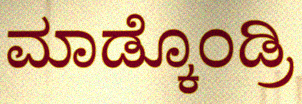
ಮಾಡ್ಕೊಂಡ್ರಿ